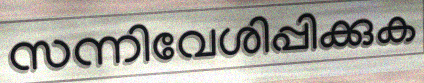
സന്നിവേശിപ്പിക്കുക